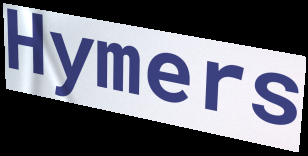
Hymers